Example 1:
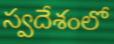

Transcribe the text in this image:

స్వదేశంలో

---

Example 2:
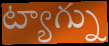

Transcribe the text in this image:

ట్యాగ్ను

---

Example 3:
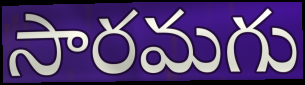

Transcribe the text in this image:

సారమగు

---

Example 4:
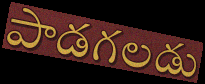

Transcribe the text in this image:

పాడగలడు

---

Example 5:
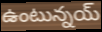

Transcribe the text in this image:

ఉంటున్నయ్